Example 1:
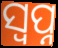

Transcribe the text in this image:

ସ୍ବପ୍ନ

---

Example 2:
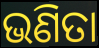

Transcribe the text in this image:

ଭଣିତା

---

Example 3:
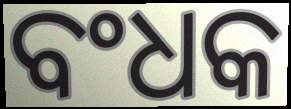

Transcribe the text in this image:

ବଂଧକ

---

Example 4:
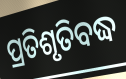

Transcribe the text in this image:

ପ୍ରତିଶୃତିବଦ୍ଧ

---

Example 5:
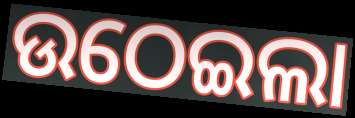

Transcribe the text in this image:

ଉଠେଇଲା